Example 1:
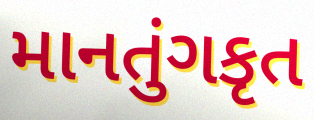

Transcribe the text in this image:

માનતુંગકૃત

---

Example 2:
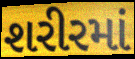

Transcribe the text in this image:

શરીરમાં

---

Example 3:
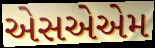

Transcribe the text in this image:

એસએએમ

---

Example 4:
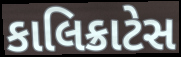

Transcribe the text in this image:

કાલિક્રાટેસ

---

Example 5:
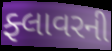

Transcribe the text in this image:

ફ્લાવરની